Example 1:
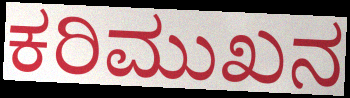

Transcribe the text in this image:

ಕರಿಮುಖನ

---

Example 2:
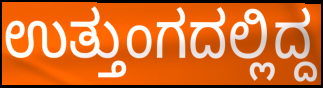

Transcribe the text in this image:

ಉತ್ತುಂಗದಲ್ಲಿದ್ದ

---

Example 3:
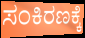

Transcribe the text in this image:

ಸಂಕಿರಣಕ್ಕೆ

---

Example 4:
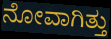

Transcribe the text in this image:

ನೋವಾಗಿತ್ತು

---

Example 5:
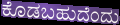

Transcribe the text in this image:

ಕೊಡಬಹುದೆಂದು